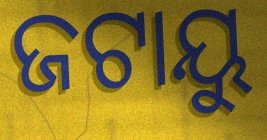
ଜଟାୟୁ